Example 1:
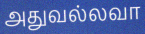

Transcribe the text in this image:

அதுவல்லவா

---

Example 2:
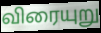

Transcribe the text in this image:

விரையுறு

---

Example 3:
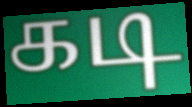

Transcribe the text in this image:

கடி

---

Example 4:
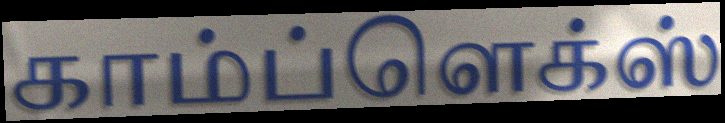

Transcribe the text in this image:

காம்ப்ளெக்ஸ்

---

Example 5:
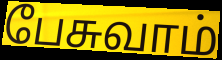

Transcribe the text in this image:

பேசுவாம்